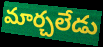
మార్చలేడు